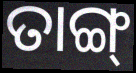
ତାଙ୍ଗ୍